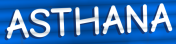
ASTHANA